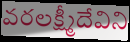
వరలక్ష్మీదేవిని